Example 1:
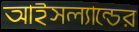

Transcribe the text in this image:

আইসল্যান্ডের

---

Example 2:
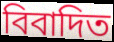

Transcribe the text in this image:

বিবাদিত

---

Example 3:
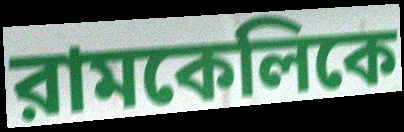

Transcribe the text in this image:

রামকেলিকে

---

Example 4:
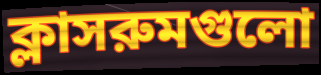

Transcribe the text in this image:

ক্লাসরুমগুলো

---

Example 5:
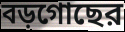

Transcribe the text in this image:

বড়গোছের